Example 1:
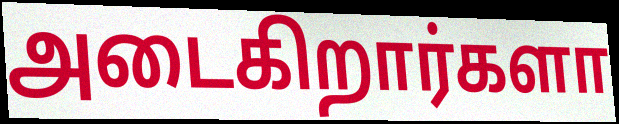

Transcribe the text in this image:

அடைகிறார்களா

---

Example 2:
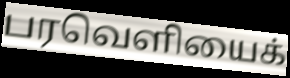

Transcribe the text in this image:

பரவெளியைக்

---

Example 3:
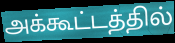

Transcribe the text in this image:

அக்கூட்டத்தில்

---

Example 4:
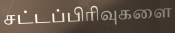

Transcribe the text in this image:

சட்டப்பிரிவுகளை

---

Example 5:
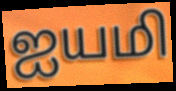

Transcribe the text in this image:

ஐயமி